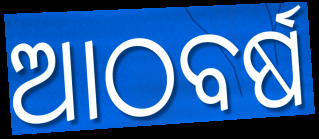
ଆଠବର୍ଷ